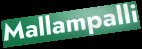
Mallampalli